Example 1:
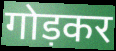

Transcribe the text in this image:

गोड़कर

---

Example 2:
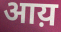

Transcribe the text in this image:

आय़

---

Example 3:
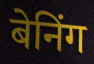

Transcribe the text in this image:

बेनिंग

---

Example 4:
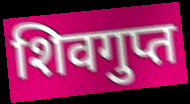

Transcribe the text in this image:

शिवगुप्त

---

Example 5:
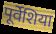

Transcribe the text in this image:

पूर्वेशिया